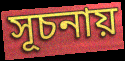
সূচনায়